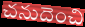
చనుదెంచి